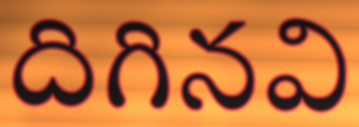
దిగినవి